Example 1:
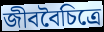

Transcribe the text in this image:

জীববৈচিত্রে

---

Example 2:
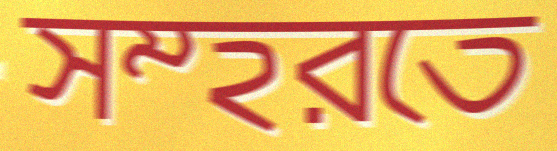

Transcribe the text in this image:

সম্হরতে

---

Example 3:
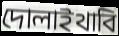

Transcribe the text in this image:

দোলাইথাবি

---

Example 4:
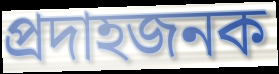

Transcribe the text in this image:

প্রদাহজনক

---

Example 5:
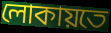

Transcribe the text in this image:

লোকায়তে